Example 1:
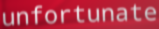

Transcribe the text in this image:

unfortunate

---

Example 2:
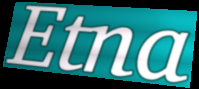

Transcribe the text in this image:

Etna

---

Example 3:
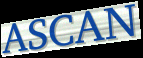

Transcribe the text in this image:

ASCAN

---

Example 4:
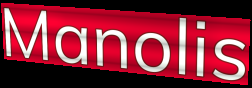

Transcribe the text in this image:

Manolis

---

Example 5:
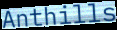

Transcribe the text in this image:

Anthills